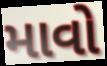
માવો